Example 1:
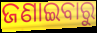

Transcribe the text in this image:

ଜଣାଇବାରୁ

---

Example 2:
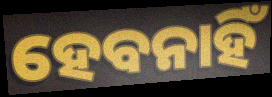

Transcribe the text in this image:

ହେବନାହିଁ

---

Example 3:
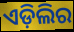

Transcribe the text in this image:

ଏଡ଼ିଲିର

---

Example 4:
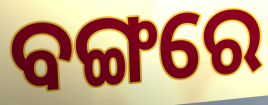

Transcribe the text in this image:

ବଙ୍ଗରେ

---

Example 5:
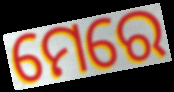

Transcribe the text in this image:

ମେରେ